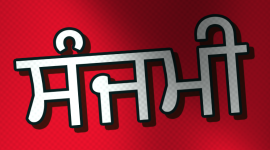
ਸੰਜਮੀ